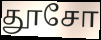
தூசோ